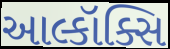
આલ્કૉક્સિ